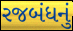
રજબંધનું